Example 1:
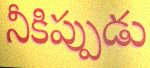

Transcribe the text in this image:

నీకిప్పుడు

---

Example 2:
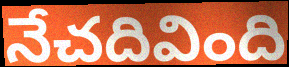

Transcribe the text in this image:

నేచదివింది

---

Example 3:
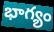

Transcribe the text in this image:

భాగ్యం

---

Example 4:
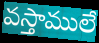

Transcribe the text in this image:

వస్తాములే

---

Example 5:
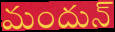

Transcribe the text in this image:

మందున్